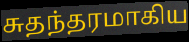
சுதந்தரமாகிய